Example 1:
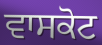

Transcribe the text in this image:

ਵਾਸਕੋਟ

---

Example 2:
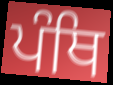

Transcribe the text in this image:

ਪੰਥਿ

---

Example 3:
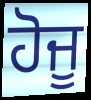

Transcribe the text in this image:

ਹੋਜੂ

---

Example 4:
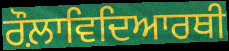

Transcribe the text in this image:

ਰੌਲ਼ਾਵਿਦਿਆਰਥੀ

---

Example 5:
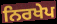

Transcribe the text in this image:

ਨਿਰਖੇਪ